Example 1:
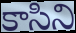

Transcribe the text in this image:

కాసిని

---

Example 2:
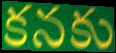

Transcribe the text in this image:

కనకు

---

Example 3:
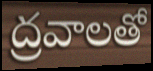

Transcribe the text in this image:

ద్రవాలతో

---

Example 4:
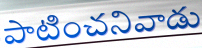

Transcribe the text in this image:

పాటించనివాడు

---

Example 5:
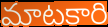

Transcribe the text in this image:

మాటకారి